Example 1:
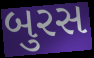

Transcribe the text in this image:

બુરસ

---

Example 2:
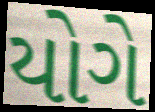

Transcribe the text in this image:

યોગે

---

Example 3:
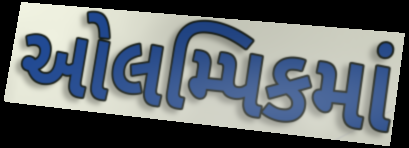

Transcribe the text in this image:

ઓલમ્પિકમાં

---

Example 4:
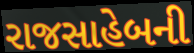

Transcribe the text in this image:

રાજસાહેબની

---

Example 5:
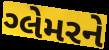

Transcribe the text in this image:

ગ્લેમરને